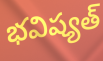
భవిష్యత్